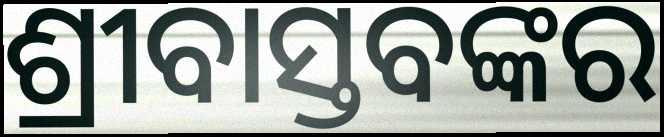
ଶ୍ରୀବାସ୍ତବଙ୍କର